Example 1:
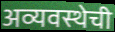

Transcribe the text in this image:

अव्यवस्थेची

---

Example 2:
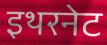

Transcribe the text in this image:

इथरनेट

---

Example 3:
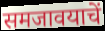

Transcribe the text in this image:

समजावयाचें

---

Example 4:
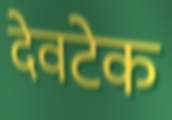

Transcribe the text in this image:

देवटेक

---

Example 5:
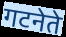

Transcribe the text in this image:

गटनेते